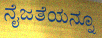
ನೈಜತೆಯನ್ನೂ